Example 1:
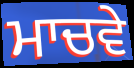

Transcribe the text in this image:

ਮਾਚਵੇ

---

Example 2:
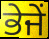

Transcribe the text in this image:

ਭੇਜੇਂ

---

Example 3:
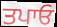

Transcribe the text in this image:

ਤਪਾਓ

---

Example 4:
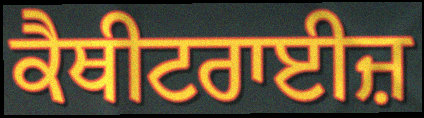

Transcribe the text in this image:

ਕੈਥੀਟਰਾਈਜ਼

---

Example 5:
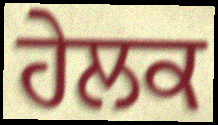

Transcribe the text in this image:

ਹੇਲਕ